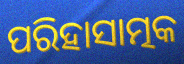
ପରିହାସାତ୍ମକ